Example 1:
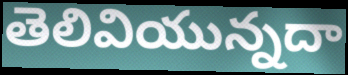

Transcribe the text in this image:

తెలివియున్నదా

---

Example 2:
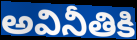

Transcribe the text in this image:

అవినీతికి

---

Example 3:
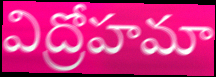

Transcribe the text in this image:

విద్రోహమా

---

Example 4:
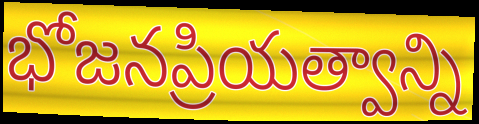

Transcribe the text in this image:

భోజనప్రియత్వాన్ని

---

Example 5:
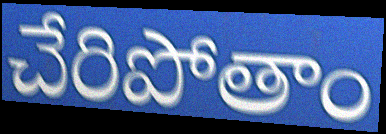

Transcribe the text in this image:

చేరిపోతాం